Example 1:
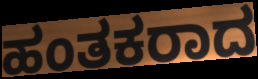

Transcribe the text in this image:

ಹಂತಕರಾದ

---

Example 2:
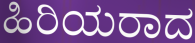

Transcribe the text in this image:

ಹಿರಿಯರಾದ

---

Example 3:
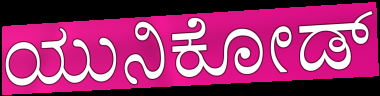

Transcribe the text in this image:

ಯುನಿಕೋಡ್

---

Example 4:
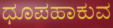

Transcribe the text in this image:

ಧೂಪಹಾಕುವ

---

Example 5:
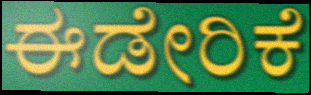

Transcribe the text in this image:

ಈಡೇರಿಕೆ